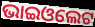
ଭାଇଓଲେଟ